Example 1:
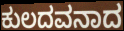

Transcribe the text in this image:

ಕುಲದವನಾದ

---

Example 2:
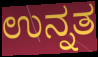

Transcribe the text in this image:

ಉನ್ನತ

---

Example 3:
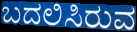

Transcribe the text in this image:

ಬದಲಿಸಿರುವ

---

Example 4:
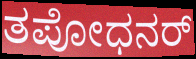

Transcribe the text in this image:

ತಪೋಧನರ್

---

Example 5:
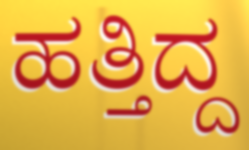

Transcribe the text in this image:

ಹತ್ತಿದ್ದ